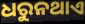
ଧରୁନଥାଏ